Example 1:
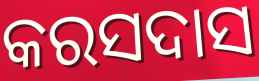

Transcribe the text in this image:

କରସଦାସ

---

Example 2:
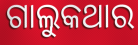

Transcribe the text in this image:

ଗାଲୁକଥାର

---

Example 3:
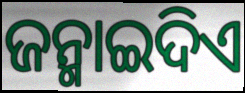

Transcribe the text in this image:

ଜନ୍ମାଇଦିଏ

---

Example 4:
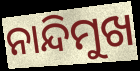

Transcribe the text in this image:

ନାନ୍ଦିମୁଖ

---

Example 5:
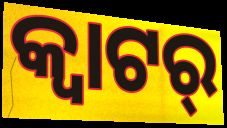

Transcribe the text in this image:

କ୍ୱାଟର୍